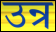
उन्र